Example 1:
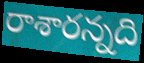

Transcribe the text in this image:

రాశారన్నది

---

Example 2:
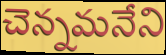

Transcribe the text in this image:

చెన్నమనేని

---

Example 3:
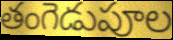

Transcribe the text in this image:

తంగెడుపూల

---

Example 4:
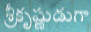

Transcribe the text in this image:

శ్రీకృష్ణుడుగా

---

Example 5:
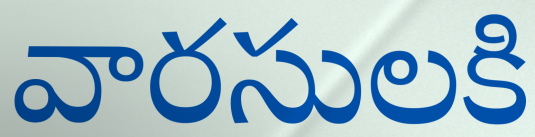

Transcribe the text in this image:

వారసులకి